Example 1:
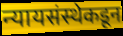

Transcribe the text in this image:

न्यायसंस्थेकडून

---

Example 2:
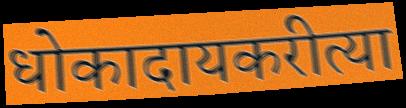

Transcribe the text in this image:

धोकादायकरीत्या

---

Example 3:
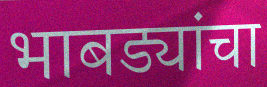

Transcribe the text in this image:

भाबड्यांचा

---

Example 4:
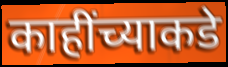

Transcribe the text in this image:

काहींच्याकडे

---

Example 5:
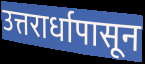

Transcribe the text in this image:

उत्तरार्धापासून